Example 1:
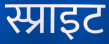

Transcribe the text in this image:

स्प्राइट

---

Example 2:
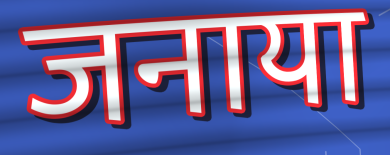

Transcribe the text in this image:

जनाया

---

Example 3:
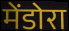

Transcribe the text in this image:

मेंडोरा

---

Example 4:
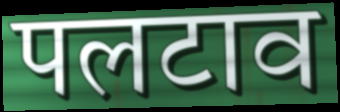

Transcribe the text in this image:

पलटाव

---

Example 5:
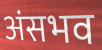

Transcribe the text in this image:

अंसभव